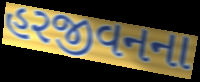
હરજીવનના